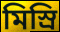
মিস্রি